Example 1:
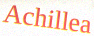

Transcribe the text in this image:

Achillea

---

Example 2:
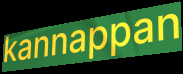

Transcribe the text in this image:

kannappan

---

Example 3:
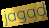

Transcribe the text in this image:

jagad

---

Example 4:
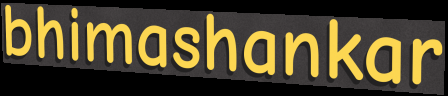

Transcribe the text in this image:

bhimashankar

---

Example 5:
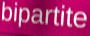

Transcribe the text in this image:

bipartite